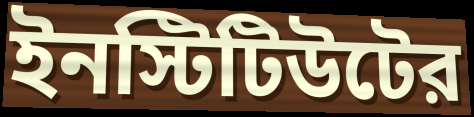
ইনস্টিটিউটের